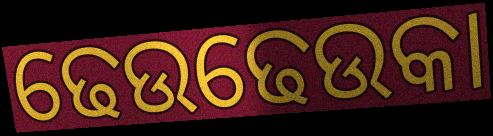
ଢେଉଢେଉକା